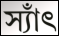
স্যাঁৎ